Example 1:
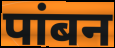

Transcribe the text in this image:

पांबन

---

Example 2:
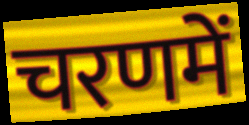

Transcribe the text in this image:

चरणमें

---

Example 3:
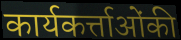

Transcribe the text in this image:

कार्यकर्त्ताओंकी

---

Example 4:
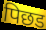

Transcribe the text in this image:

पिछड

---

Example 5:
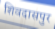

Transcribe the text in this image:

शिवदासपुर